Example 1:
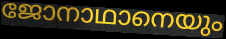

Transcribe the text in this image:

ജോനാഥാനെയും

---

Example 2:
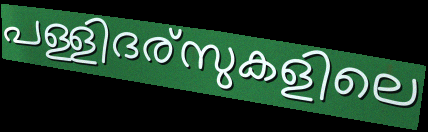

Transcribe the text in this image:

പള്ളിദര്സുകളിലെ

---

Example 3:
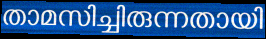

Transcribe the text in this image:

താമസിച്ചിരുന്നതായി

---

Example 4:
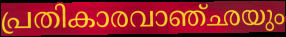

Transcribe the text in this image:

പ്രതികാരവാഞ്ഛയും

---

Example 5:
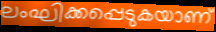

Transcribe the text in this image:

ലംഘിക്കപ്പെടുകയാണ്